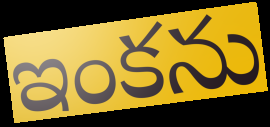
ఇంకను